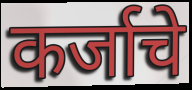
कर्जाचे